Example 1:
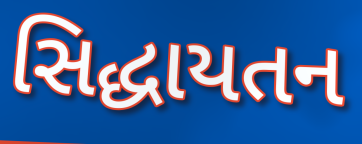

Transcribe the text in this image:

સિદ્ધાયતન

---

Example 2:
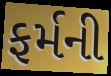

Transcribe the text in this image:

ફર્મની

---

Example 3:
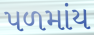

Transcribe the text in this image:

પળમાંય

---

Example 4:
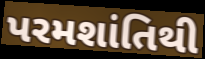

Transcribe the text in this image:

પરમશાંતિથી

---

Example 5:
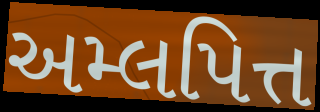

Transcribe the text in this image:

અમ્લપિત્ત